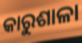
କାରୁଶାଳା